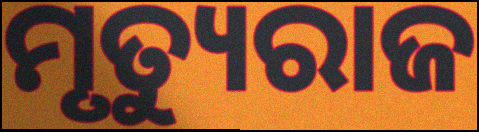
ମୃତ୍ୟୁରାଜ